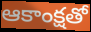
ఆకాంక్షతో